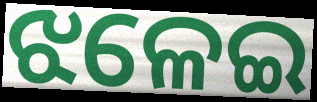
ଝଳେଇ